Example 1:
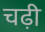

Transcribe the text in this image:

चढ़ी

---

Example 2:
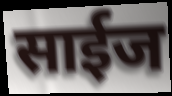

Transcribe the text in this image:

साईज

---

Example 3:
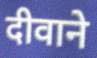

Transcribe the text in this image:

दीवाने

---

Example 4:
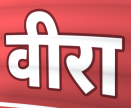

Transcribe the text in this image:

वीरा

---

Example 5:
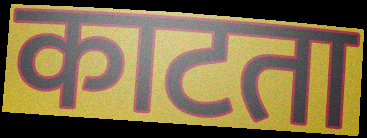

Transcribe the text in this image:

काटता